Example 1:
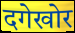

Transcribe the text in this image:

दगेखोर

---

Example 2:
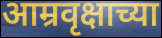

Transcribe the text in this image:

आम्रवृक्षाच्या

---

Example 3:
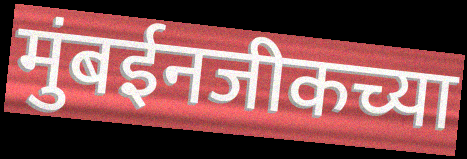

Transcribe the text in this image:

मुंबईनजीकच्या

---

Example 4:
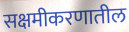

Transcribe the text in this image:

सक्षमीकरणातील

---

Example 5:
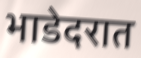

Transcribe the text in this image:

भाडेदरात